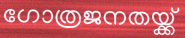
ഗോത്രജനതയ്ക്ക്